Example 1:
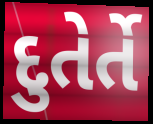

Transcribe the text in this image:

દુતેર્તે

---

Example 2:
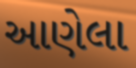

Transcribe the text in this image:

આણેલા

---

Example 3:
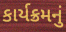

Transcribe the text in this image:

કાર્યક્રમનું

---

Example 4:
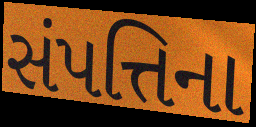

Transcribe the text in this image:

સંપત્તિના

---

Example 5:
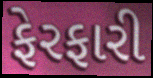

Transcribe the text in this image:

ફેરફારી